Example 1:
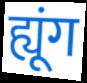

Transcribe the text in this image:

ह्यूंग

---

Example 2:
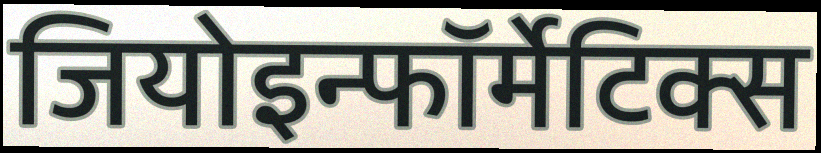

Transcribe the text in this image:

जियोइन्फॉर्मेटिक्स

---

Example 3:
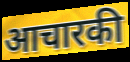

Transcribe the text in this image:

आचारकी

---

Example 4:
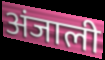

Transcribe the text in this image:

अंजाली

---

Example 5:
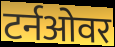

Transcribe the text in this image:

टर्नओवर